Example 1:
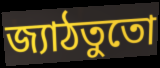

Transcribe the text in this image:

জ্যাঠতুতো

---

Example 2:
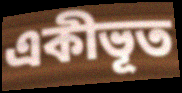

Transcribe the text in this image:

একীভূত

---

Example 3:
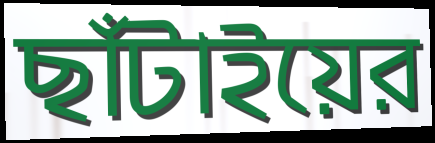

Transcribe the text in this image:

ছাঁটাইয়ের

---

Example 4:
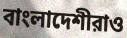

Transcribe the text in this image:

বাংলাদেশীরাও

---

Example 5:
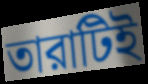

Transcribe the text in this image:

তারাটিই